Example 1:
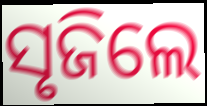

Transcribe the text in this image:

ସୃଜିଲେ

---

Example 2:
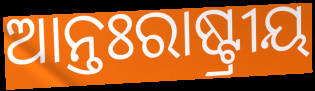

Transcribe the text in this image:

ଆନ୍ତଃରାଷ୍ଟ୍ରୀୟ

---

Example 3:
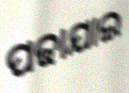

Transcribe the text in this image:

ପଢାଯାଇ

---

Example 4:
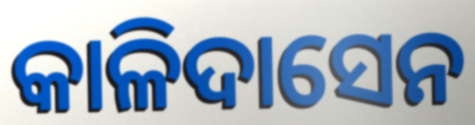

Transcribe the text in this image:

କାଳିଦାସେନ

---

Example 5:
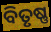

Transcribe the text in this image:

ବିତୃଷ୍ଣ